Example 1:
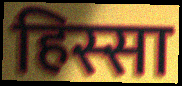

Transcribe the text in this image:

हिस्सा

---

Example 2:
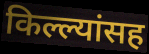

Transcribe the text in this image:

किल्ल्यांसह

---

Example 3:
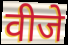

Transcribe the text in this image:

वीजे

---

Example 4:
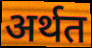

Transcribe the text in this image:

अर्थत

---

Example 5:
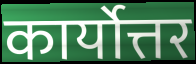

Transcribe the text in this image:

कार्योत्तर